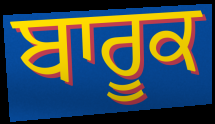
ਬਾਰੂਕ